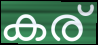
കര്